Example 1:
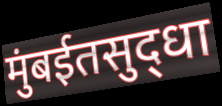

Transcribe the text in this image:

मुंबईतसुद्धा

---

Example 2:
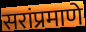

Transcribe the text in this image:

सरांप्रमाणे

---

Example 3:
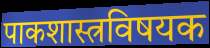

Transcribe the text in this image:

पाकशास्त्रविषयक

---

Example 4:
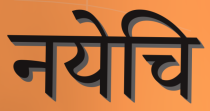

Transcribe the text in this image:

नयेचि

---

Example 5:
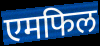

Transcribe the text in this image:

एमफिल